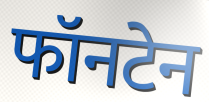
फॉनटेन